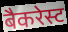
बैकरेस्ट